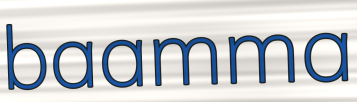
baamma